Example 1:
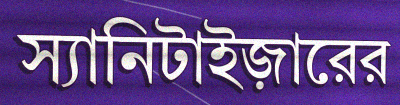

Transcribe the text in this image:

স্যানিটাইজ়ারের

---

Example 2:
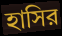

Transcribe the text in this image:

হাসির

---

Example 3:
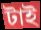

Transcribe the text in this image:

টাই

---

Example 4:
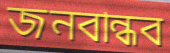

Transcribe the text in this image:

জনবান্ধব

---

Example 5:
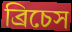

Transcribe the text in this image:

ব্রিচেস